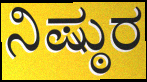
ನಿಷ್ಠುರ